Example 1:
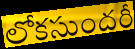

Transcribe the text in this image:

లోకసుందరీ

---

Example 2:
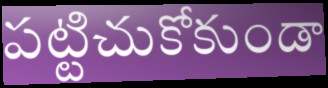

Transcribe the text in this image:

పట్టిచుకోకుండా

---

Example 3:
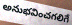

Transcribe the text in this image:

అనుభవించగలిగే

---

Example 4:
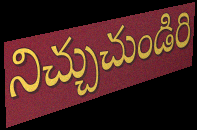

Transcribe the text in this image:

నిచ్చుచుండిరి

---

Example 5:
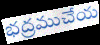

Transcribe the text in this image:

భద్రముచేయ